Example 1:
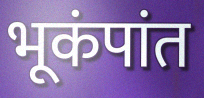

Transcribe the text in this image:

भूकंपांत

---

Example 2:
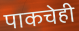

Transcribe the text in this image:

पाकचेही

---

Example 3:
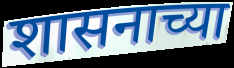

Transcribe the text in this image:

शासनाच्या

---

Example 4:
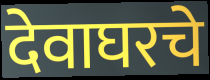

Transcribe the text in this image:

देवाघरचे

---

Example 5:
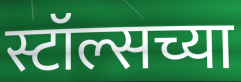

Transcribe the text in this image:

स्टॉल्सच्या